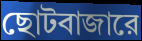
ছোটবাজারে